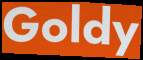
Goldy